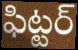
ఫిట్టర్